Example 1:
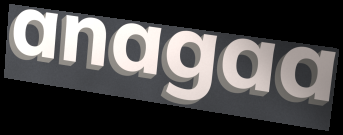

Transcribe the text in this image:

anagaa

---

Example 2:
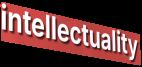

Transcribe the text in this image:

intellectuality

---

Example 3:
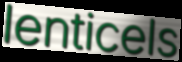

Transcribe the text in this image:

lenticels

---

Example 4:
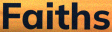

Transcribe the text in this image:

Faiths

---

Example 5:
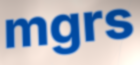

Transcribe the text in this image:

mgrs